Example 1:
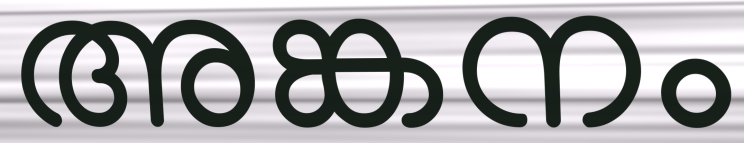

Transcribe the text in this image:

അങ്കനം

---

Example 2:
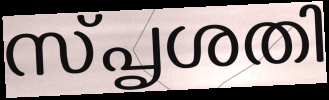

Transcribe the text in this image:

സ്പൃശതി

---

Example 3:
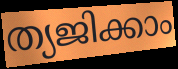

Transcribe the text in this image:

ത്യജിക്കാം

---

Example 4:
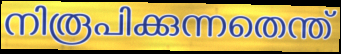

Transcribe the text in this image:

നിരൂപിക്കുന്നതെന്ത്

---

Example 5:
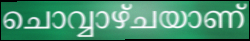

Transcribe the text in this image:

ചൊവ്വാഴ്ചയാണ്